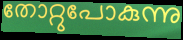
തോറ്റുപോകുന്നു